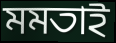
মমতাই